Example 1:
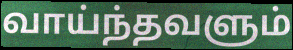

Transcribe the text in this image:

வாய்ந்தவளும்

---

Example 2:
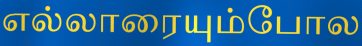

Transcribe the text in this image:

எல்லாரையும்போல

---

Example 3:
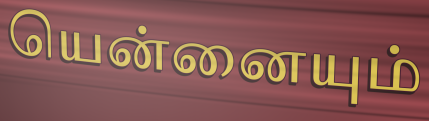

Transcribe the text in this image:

யென்னையும்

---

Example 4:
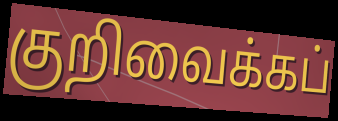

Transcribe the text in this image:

குறிவைக்கப்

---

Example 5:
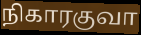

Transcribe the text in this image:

நிகாரகுவா